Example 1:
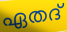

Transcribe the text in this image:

ഏതദ്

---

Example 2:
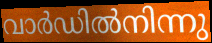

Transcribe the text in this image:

വാർഡിൽനിന്നു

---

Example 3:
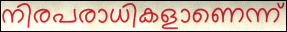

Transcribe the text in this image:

നിരപരാധികളാണെന്ന്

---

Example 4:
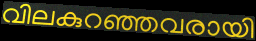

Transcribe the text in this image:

വിലകുറഞ്ഞവരായി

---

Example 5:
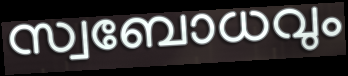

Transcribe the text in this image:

സ്വബോധവും